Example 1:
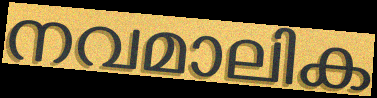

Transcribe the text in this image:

നവമാലിക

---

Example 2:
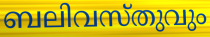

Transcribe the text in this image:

ബലിവസ്തുവും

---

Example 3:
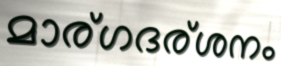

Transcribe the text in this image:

മാര്ഗദര്ശനം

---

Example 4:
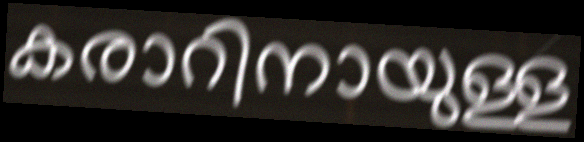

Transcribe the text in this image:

കരാറിനായുള്ള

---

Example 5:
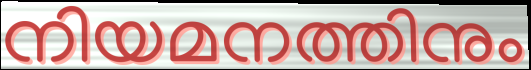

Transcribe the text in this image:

നിയമനത്തിനും